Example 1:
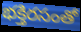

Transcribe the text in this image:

భక్తిరసంతో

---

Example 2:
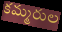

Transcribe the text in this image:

కమ్మరుల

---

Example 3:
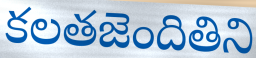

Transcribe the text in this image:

కలతజెందితిని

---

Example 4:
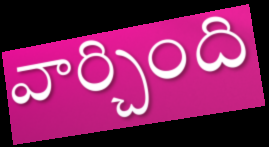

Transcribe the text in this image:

వార్చింది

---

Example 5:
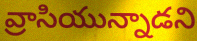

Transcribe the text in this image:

వ్రాసియున్నాడని